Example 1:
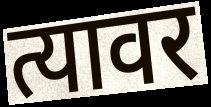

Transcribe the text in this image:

त्यावर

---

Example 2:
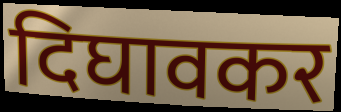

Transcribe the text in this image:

दिघावकर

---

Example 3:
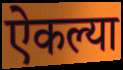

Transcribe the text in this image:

ऐकल्या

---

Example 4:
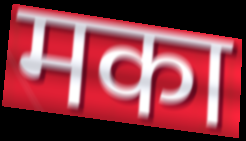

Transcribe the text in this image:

मका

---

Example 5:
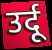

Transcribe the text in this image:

उर्दू